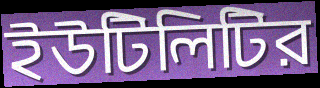
ইউটিলিটির